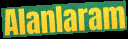
Alanlaram